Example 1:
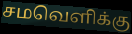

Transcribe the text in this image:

சமவெளிக்கு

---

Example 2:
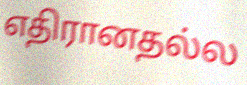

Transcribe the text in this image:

எதிரானதல்ல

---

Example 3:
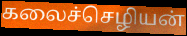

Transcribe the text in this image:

கலைச்செழியன்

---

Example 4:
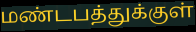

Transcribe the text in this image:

மண்டபத்துக்குள்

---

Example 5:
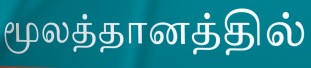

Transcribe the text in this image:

மூலத்தானத்தில்